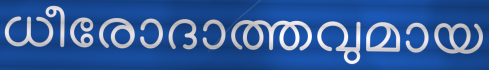
ധീരോദാത്തവുമായ